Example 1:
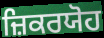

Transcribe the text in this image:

ਜ਼ਿਕਰਯੋਹ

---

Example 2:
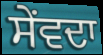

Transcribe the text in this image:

ਸੇਂਵਦਾ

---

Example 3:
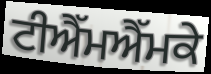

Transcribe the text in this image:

ਟੀਐੱਮਐੱਮਕੇ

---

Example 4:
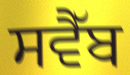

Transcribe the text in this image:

ਸਵੈੱਬ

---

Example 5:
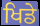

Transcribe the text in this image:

ਖਿਡੇ